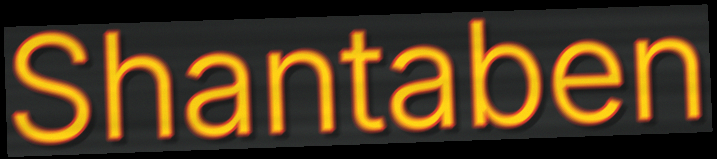
Shantaben